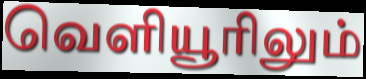
வெளியூரிலும்